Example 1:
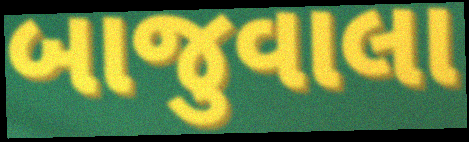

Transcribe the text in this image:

બાજુવાલા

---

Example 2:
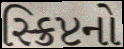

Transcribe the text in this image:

સ્ક્રિપ્ટનો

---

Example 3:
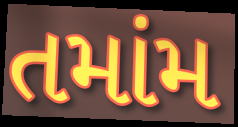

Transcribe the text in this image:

તમાંમ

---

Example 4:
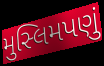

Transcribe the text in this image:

મુસ્લિમપણું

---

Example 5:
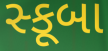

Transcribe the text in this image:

સ્કૂબા